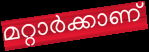
മറ്റാർക്കാണ്